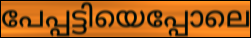
പേപ്പട്ടിയെപ്പോലെ